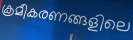
ക്രമീകരണങ്ങളിലെ